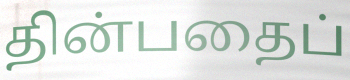
தின்பதைப்